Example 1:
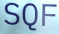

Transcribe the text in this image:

SQF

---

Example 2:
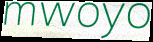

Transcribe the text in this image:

mwoyo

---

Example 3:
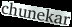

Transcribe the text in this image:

chunekar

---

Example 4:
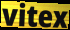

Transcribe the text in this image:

vitex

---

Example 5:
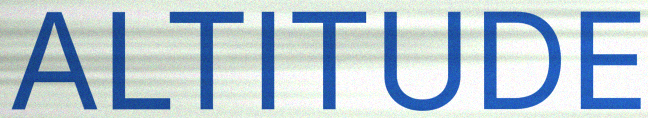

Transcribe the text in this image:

ALTITUDE